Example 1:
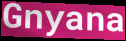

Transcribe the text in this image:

Gnyana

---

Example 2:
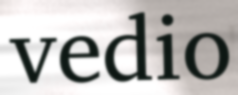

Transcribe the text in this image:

vedio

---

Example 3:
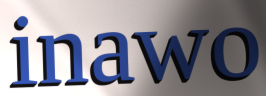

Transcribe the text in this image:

inawo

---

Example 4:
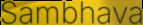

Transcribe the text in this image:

Sambhava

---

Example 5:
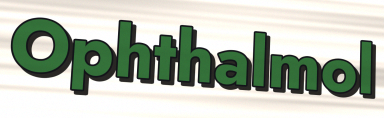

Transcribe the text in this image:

Ophthalmol